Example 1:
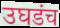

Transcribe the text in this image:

उघडंच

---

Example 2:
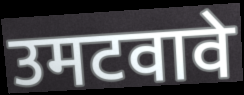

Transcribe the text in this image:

उमटवावे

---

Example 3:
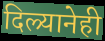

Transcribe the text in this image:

दिल्यानेही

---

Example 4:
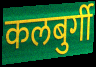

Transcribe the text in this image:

कलबुर्गी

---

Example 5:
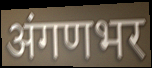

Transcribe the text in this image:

अंगणभर